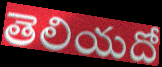
తెలియదో